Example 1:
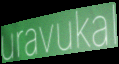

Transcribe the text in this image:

uravukal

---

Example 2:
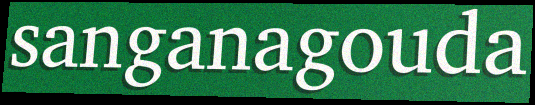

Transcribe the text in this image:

sanganagouda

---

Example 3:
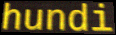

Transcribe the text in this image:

hundi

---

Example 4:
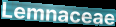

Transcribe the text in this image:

Lemnaceae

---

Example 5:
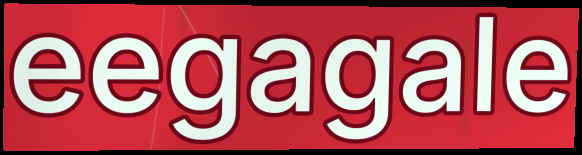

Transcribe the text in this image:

eegagale